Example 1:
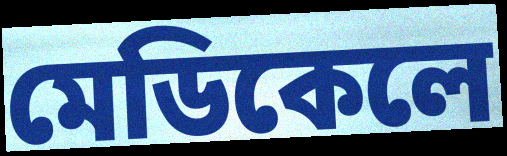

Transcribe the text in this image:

মেডিকেলে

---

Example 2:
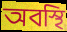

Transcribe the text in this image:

অবস্থি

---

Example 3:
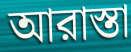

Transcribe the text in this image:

আরাস্তা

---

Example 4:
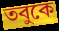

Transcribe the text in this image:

তবুকে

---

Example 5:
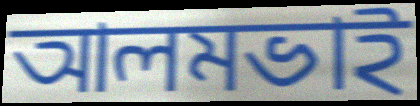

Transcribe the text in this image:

আলমভাই